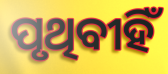
ପୃଥିବୀହିଁ